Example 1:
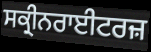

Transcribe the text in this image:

ਸਕ੍ਰੀਨਰਾਈਟਰਜ਼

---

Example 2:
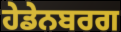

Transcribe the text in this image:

ਹੇਡੇਨਬਰਗ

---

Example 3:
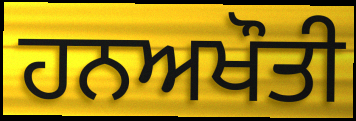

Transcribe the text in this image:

ਹਨਅਖੌਤੀ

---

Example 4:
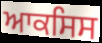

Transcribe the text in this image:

ਆਕਸਿਸ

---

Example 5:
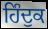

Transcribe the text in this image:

ਹਿੰਦੁਕ